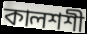
কালশশী